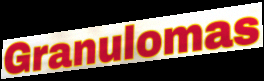
Granulomas